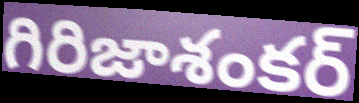
గిరిజాశంకర్